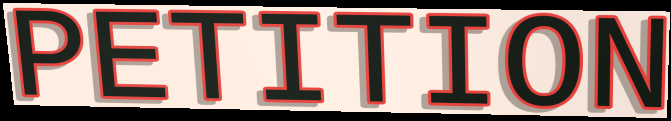
PETITION